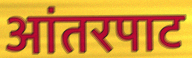
आंतरपाट